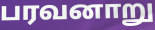
பரவனாறு